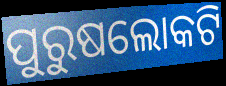
ପୁରୁଷଲୋକଟି